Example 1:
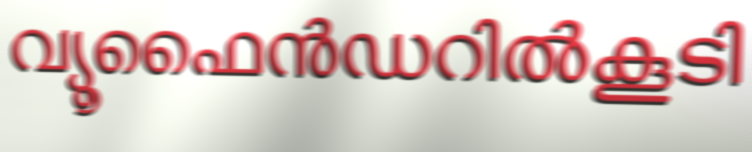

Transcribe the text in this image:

വ്യൂഫൈൻഡറിൽകൂടി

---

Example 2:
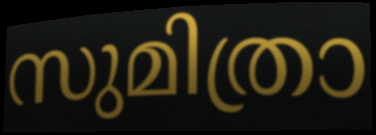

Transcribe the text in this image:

സുമിത്രാ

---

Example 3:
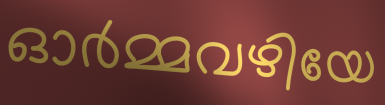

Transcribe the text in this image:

ഓർമ്മവഴിയേ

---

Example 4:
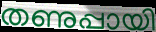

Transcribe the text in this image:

തണുപ്പായി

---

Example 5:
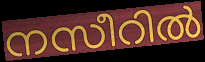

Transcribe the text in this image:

നസീറിൽ